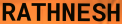
RATHNESH